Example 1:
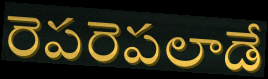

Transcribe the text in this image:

రెపరెపలాడే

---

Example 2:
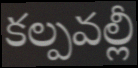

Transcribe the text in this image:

కల్పవల్లీ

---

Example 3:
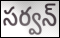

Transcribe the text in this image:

సర్వన్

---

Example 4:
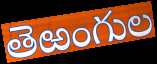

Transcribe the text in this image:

తెఱంగుల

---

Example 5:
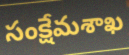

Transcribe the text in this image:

సంక్షేమశాఖ